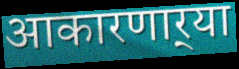
आकारणार्या